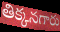
తిక్కనగారు